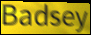
Badsey